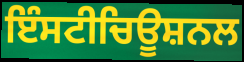
ਇੰਸਟੀਚਿਊਸ਼ਨਲ